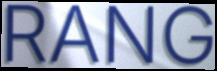
RANG